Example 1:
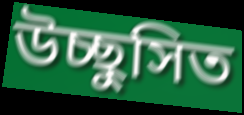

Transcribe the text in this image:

উচ্ছুসিত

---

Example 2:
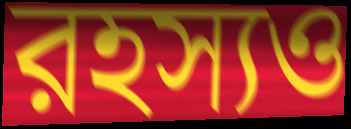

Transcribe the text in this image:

রহস্যও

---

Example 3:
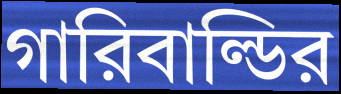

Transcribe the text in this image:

গারিবাল্ডির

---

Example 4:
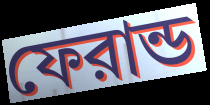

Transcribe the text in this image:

ফেরান্ড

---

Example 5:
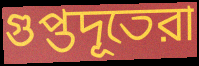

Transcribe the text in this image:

গুপ্তদূতেরা